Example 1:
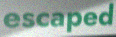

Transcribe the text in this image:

escaped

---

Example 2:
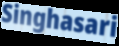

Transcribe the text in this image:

Singhasari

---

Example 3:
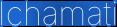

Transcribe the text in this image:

Ichamati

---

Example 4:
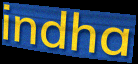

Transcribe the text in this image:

indha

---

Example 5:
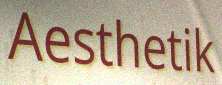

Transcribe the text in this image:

Aesthetik